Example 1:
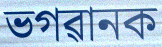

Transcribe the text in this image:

ভগৱানক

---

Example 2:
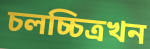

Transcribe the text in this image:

চলচ্চিত্ৰখন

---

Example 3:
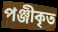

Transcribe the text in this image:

পঞ্জীকৃত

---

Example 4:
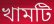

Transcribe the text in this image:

খামটি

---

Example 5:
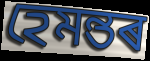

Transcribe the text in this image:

হেমন্তৰ